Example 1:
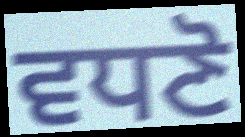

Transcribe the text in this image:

ਵਧਣੋ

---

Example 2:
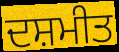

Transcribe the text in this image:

ਦਸ਼ਮੀਤ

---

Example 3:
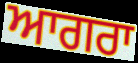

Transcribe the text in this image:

ਆਗਰਾ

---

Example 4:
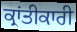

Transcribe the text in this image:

ਕ੍ਰਾਂਤੀਕਾਰੀ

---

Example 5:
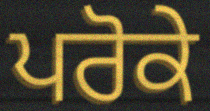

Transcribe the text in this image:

ਪਰੋਕੇ